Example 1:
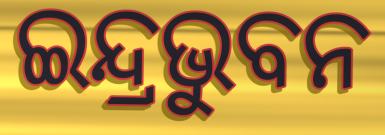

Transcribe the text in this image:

ଇନ୍ଦ୍ରଭୁବନ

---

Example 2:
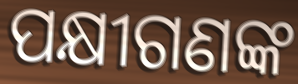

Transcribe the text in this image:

ପକ୍ଷୀଗଣଙ୍କ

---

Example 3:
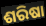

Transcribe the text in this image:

ଶରିଷା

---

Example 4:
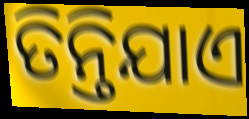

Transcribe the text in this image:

ତିନ୍ତିଯାଏ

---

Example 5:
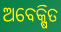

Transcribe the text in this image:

ଅବେକ୍ଷିତ